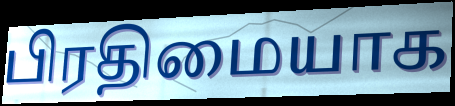
பிரதிமையாக